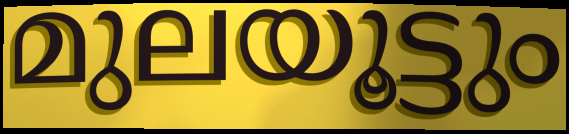
മുലയൂട്ടും